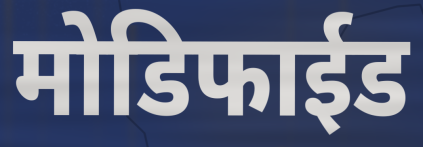
मोडिफाईड